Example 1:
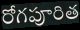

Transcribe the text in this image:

రోగపూరిత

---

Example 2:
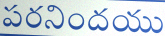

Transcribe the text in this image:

పరనిందయు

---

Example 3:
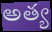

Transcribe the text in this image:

అత్య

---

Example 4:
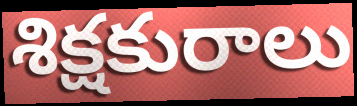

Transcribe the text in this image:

శిక్షకురాలు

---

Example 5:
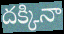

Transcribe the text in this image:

దక్కినా